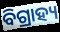
ବିଗ୍ରାହ୍ୟ